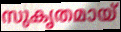
സുകൃതമായ്